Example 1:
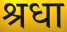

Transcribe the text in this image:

श्रधा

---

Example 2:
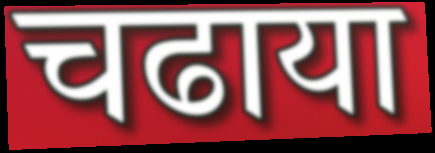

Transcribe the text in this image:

चढाया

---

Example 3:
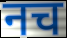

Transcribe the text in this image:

नच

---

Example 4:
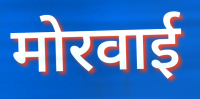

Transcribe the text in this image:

मोरवाई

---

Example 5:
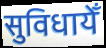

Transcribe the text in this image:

सुविधायेँ